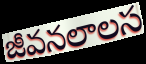
జీవనలాలస